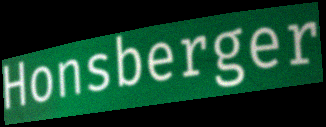
Honsberger